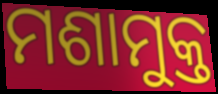
ମଶାମୁକ୍ତ